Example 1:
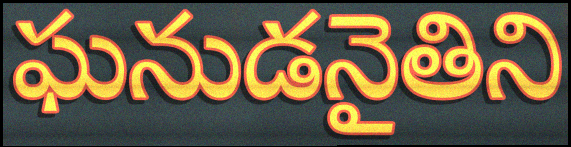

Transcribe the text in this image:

ఘనుడనైతిని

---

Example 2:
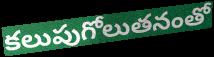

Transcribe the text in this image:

కలుపుగోలుతనంతో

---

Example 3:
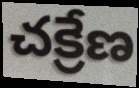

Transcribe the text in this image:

చక్రేణ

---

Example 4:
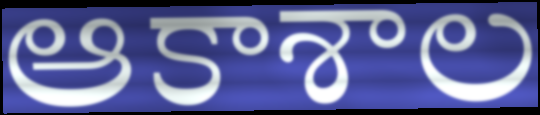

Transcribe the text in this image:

ఆకాశాల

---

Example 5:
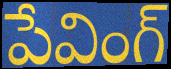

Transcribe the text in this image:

పేవింగ్